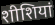
शीशियां